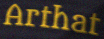
Arthat